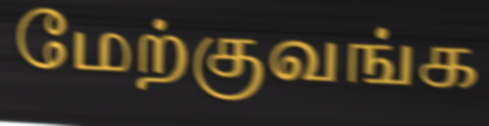
மேற்குவங்க